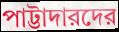
পাট্টাদারদের